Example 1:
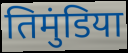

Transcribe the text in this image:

तिमुंडिया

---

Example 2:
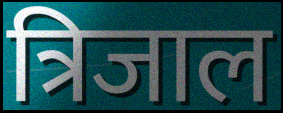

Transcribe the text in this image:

त्रिजाल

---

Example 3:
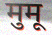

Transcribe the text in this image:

मुमू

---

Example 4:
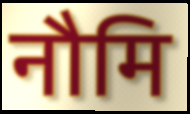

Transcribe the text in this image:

नौमि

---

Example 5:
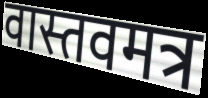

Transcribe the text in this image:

वास्तवमत्र